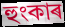
হুংকাৰ